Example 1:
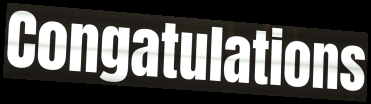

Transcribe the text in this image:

Congatulations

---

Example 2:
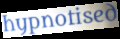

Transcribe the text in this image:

hypnotised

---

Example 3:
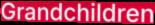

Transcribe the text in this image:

Grandchildren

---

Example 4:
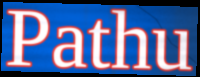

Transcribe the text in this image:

Pathu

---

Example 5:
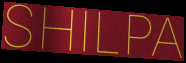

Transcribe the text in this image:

SHILPA